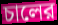
চালের